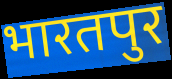
भारतपुर